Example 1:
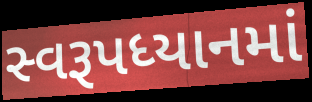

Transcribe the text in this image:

સ્વરૂપધ્યાનમાં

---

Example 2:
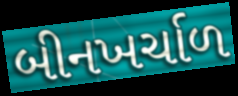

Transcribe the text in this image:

બીનખર્ચાળ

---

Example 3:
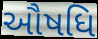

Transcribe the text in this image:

ઔષધિ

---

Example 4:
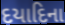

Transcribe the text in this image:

દયાદિના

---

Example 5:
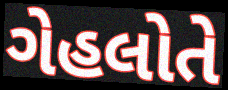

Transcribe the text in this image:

ગેહલોતે